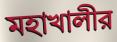
মহাখালীর